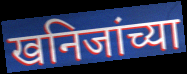
खनिजांच्या